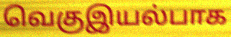
வெகுஇயல்பாக